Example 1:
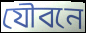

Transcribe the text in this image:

যৌবনে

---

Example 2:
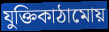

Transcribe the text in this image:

যুক্তিকাঠামোয়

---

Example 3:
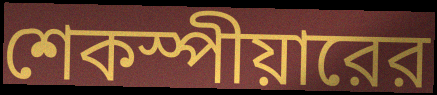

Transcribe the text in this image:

শেকস্পীয়ারের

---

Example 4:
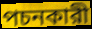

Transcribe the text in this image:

পচনকারী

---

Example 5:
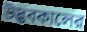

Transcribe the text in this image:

উদ্ভবকালের